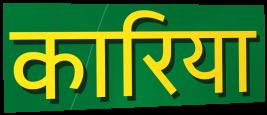
कारिया